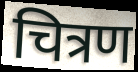
चित्रण